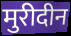
मुरीदीन